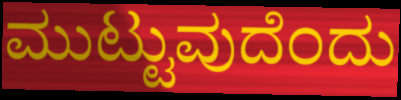
ಮುಟ್ಟುವುದೆಂದು